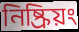
নিষ্ক্রিয়ং